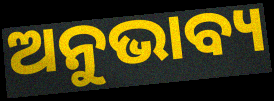
ଅନୁଭାବ୍ୟ